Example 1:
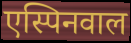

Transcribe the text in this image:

एस्पिनवाल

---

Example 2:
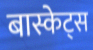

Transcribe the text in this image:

बास्केट्स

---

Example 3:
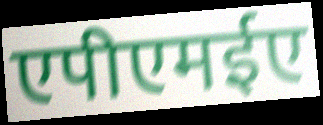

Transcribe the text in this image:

एपीएमईए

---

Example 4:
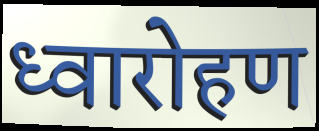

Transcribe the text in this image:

ध्वारोहण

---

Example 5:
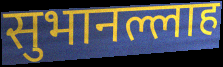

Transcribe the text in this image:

सुभानल्लाह